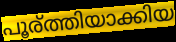
പൂര്ത്തിയാക്കിയ